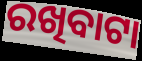
ରଖିବାଟା